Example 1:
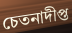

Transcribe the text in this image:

চেতনাদীপ্ত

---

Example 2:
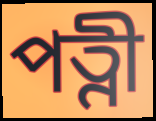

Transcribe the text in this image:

পত্নী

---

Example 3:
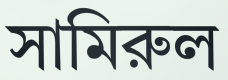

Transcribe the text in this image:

সামিরুল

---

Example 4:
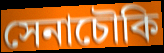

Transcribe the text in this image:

সেনাচৌকি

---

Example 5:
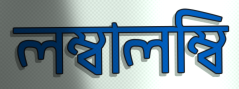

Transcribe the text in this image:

লম্বালম্বি